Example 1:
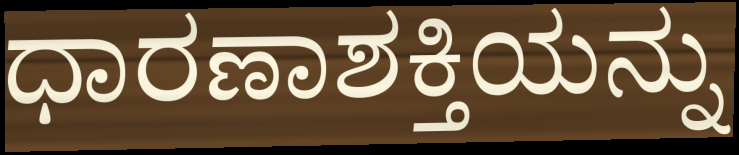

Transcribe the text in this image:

ಧಾರಣಾಶಕ್ತಿಯನ್ನು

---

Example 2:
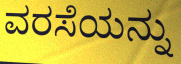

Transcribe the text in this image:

ವರಸೆಯನ್ನು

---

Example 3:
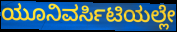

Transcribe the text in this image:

ಯೂನಿವರ್ಸಿಟಿಯಲ್ಲೇ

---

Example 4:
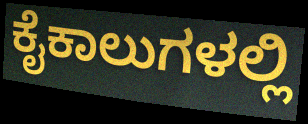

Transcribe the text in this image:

ಕೈಕಾಲುಗಳಲ್ಲಿ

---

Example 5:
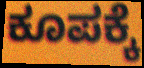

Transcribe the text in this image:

ಕೂಪಕ್ಕೆ